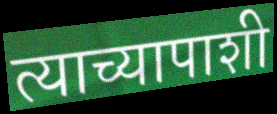
त्याच्यापाशी